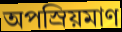
অপস্রিয়মাণ